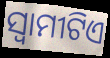
ସ୍ୱାମୀଟିଏ